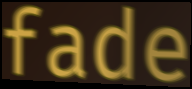
fade